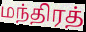
மந்திரத்